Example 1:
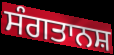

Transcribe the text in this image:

ਸੰਗਤਾਨਸ਼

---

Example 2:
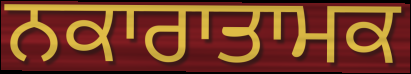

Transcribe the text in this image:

ਨਕਾਰਾਤਾਮਕ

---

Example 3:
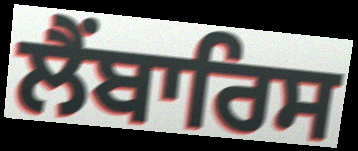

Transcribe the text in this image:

ਲੈਂਬਾਰਿਸ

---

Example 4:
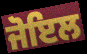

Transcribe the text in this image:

ਜੋਇਲ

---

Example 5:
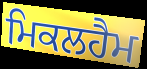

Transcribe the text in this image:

ਮਿਕਲਹੈਮ